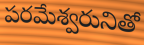
పరమేశ్వరునితో